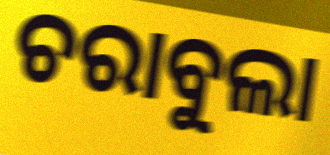
ଚରାବୁଲା